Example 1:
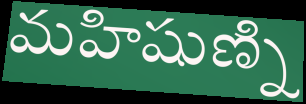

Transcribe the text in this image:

మహిషుణ్ని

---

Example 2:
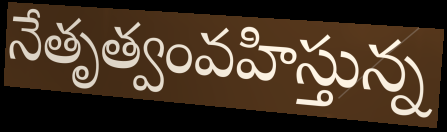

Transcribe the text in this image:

నేతృత్వంవహిస్తున్న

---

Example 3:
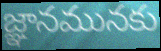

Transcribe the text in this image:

జ్ఞానమునకు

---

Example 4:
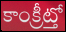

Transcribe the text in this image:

కాంక్రీట్తో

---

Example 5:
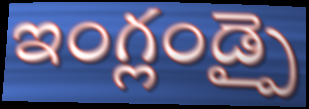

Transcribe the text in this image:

ఇంగ్లండ్పై